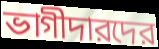
ভাগীদারদের